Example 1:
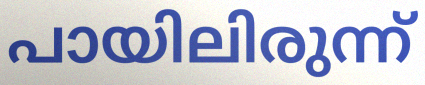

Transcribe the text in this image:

പായിലിരുന്ന്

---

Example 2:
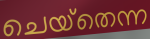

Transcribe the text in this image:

ചെയ്‌തെന്ന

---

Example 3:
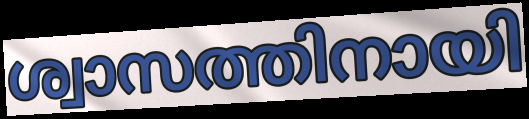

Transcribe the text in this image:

ശ്വാസത്തിനായി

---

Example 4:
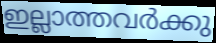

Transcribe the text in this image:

ഇല്ലാത്തവർക്കു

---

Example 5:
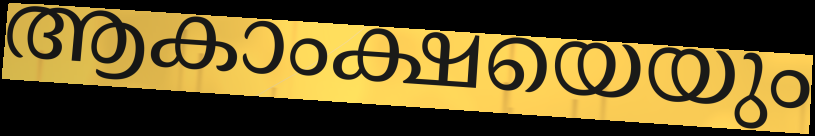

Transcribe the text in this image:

ആകാംക്ഷയെയും